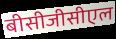
बीसीजीसीएल